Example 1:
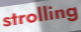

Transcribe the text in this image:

strolling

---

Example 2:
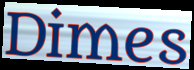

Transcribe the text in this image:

Dimes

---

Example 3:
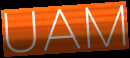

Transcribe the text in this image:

UAM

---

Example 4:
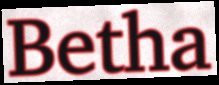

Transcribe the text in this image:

Betha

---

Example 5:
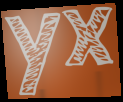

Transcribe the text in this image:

yx